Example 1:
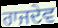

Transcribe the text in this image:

ਰਾਜਦੇਵ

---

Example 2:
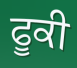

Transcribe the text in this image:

ਫੂਕੀ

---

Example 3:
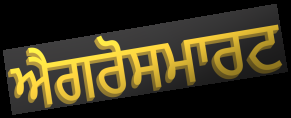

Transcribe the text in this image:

ਐਗਰੋਸਮਾਰਟ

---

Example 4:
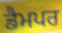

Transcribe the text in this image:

ਡੈਮਪਰ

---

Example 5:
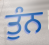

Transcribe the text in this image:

ਤੁੰਨ